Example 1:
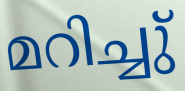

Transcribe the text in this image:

മറിച്ചു്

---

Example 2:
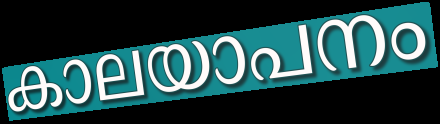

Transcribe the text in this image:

കാലയാപനം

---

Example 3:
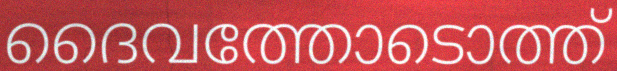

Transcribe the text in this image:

ദൈവത്തോടൊത്ത്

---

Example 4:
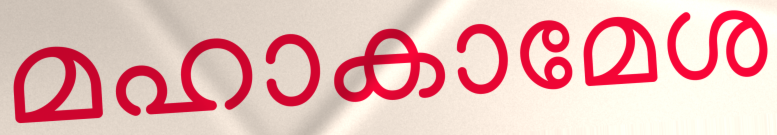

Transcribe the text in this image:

മഹാകാമേശ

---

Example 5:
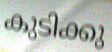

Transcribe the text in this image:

കുടിക്കു